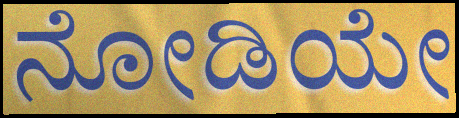
ನೋಡಿಯೇ